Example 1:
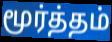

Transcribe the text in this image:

மூர்த்தம்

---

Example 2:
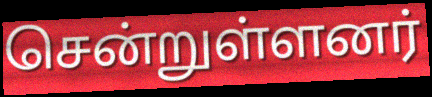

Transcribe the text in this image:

சென்றுள்ளனர்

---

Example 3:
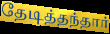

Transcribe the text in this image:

தேடித்தந்தார்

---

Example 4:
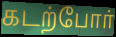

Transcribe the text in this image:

கடற்போர்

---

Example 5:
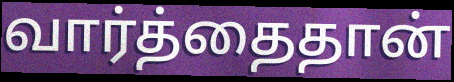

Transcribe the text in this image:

வார்த்தைதான்